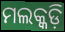
ମଲକ୍କଡ଼ି